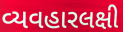
વ્યવહારલક્ષી